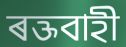
ৰক্তবাহী